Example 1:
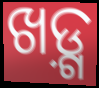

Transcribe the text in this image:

ଖଡ଼୍ଗ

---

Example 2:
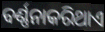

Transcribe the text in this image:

ବର୍ଣ୍ଣନାକରିଥାଏ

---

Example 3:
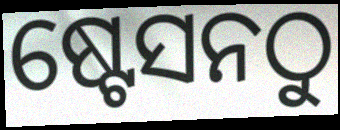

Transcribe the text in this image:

ଷ୍ଟେସନଠୁ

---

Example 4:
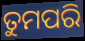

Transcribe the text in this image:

ତୁମପରି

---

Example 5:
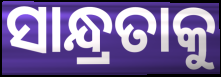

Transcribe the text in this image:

ସାନ୍ଧ୍ରତାକୁ